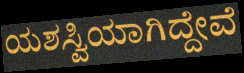
ಯಶಸ್ವಿಯಾಗಿದ್ದೇವೆ